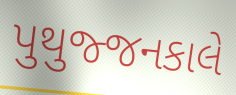
પુથુજ્જનકાલે